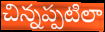
చిన్నప్పటిలా